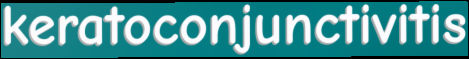
keratoconjunctivitis